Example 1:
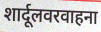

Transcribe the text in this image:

शार्दूलवरवाहना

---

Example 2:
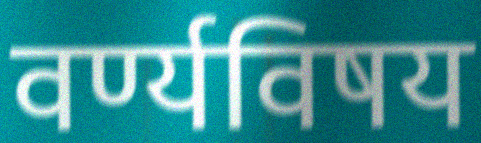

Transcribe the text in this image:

वर्ण्यविषय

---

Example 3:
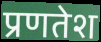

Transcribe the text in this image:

प्रणतेश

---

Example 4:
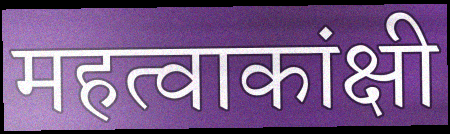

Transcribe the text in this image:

महत्वाकांक्षी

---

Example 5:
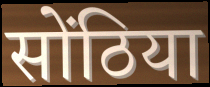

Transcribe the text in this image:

सोंठिया